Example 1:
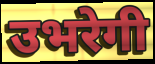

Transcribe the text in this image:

उभरेगी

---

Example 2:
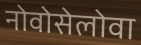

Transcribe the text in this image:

नोवोसेलोवा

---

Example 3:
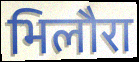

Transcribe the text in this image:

भिलौरा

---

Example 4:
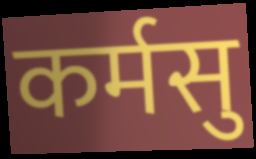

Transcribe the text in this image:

कर्मसु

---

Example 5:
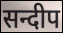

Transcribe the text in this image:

सन्दीप